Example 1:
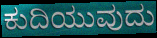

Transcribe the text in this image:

ಕುದಿಯುವುದು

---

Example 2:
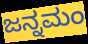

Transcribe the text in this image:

ಜನ್ನಮಂ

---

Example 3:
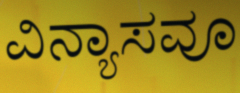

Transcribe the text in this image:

ವಿನ್ಯಾಸವೂ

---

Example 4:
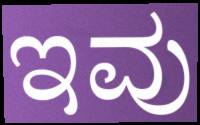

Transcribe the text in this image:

ಇವು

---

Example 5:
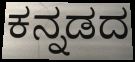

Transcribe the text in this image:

ಕನ್ನಡದ